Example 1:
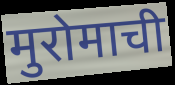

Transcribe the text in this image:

मुरोमाची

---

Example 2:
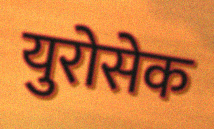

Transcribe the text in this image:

युरोसेक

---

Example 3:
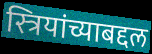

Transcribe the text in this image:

स्त्रियांच्याबद्दल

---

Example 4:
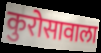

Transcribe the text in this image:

कुरोसावाला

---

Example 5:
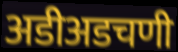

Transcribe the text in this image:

अडीअडचणी